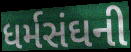
ધર્મસંઘની